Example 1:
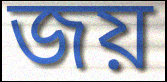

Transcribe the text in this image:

জয়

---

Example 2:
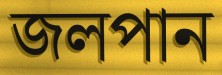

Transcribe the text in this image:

জলপান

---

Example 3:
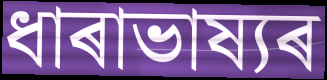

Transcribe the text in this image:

ধাৰাভাষ্যৰ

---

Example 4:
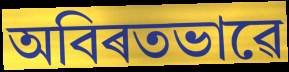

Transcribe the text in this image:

অবিৰতভাৱে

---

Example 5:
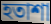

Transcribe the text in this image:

হতাশা